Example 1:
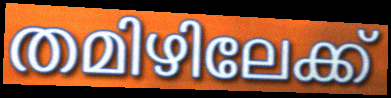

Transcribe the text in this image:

തമിഴിലേക്ക്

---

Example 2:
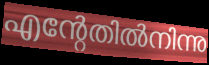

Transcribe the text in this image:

എന്റേതിൽനിന്നു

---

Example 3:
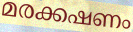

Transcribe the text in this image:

മരക്കഷണം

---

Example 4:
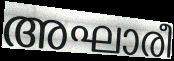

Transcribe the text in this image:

അഘാരീ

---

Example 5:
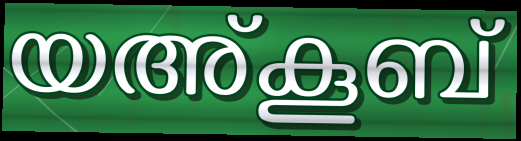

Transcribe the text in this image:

യഅ്കൂബ്